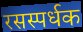
रसस्पर्धक